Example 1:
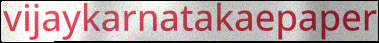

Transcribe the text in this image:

vijaykarnatakaepaper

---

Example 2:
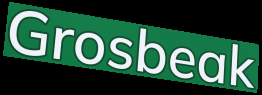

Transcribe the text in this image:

Grosbeak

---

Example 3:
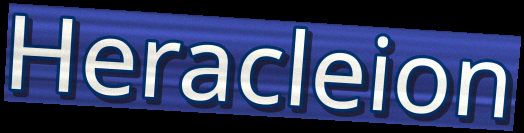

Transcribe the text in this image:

Heracleion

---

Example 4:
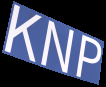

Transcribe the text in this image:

KNP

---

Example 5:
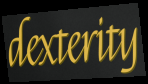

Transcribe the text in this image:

dexterity